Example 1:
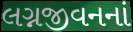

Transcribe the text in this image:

લગ્નજીવનનાં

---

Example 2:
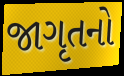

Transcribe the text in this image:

જાગૃતનો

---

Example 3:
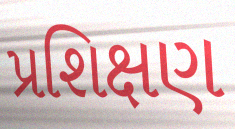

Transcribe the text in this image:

પ્રશિક્ષણ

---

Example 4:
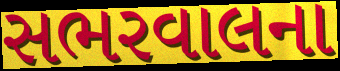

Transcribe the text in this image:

સભરવાલના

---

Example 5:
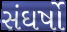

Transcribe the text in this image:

સંઘર્ષો